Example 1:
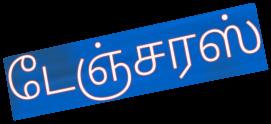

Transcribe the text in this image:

டேஞ்சரஸ்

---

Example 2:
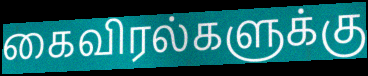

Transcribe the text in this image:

கைவிரல்களுக்கு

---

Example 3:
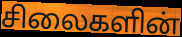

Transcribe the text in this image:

சிலைகளின்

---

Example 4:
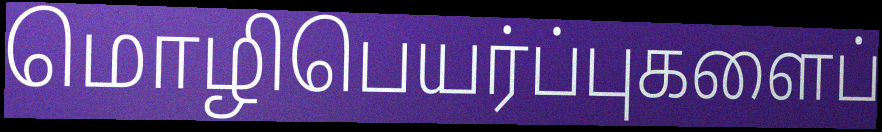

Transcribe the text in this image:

மொழிபெயர்ப்புகளைப்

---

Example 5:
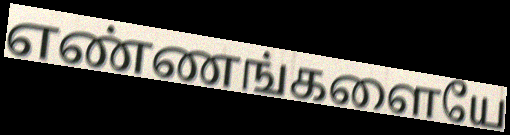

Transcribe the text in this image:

எண்ணங்களையே